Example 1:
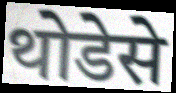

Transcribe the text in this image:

थोडेसे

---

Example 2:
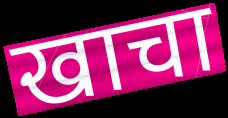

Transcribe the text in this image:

खाचा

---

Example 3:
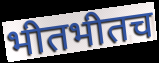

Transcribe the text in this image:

भीतभीतच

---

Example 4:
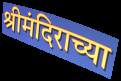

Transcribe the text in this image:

श्रीमंदिराच्या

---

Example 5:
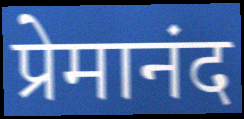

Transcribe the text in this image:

प्रेमानंद